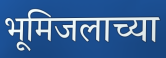
भूमिजलाच्या